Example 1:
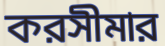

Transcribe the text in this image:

করসীমার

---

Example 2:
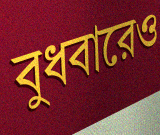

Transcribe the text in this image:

বুধবারেও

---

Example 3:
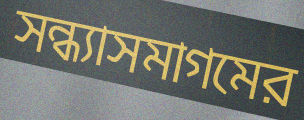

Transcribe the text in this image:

সন্ধ্যাসমাগমের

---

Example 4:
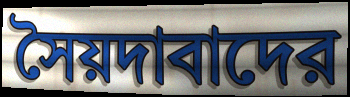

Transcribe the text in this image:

সৈয়দাবাদের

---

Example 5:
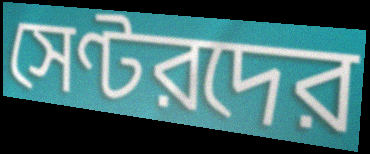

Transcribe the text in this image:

সেণ্টরদের